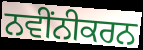
ਨਵੀਂਨੀਕਰਨ